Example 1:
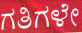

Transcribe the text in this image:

ಗತಿಗಳೇ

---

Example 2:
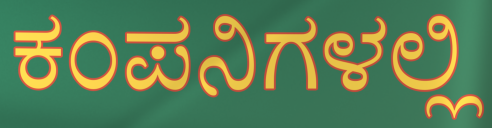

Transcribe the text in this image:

ಕಂಪನಿಗಳಲ್ಲಿ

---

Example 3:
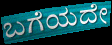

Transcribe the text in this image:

ಬಗೆಯದೇ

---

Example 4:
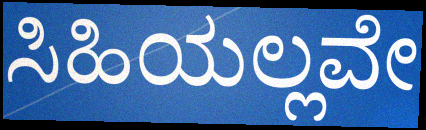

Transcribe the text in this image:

ಸಿಹಿಯಲ್ಲವೇ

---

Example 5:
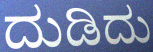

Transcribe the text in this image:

ದುಡಿದು